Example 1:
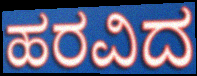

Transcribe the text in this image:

ಹರವಿದ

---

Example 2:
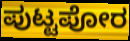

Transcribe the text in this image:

ಪುಟ್ಟಪೋರ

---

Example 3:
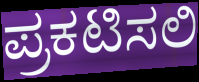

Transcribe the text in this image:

ಪ್ರಕಟಿಸಲಿ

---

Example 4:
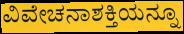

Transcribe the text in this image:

ವಿವೇಚನಾಶಕ್ತಿಯನ್ನೂ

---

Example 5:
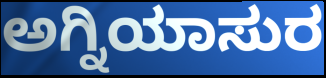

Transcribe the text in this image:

ಅಗ್ನಿಯಾಸುರ